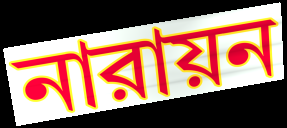
নারায়ন